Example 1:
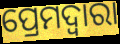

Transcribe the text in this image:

ପ୍ରେମଦ୍ୱାରା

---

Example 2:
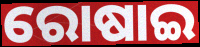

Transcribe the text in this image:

ରୋଷାଇ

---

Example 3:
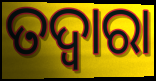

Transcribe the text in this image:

ତଦ୍ୱାରା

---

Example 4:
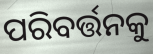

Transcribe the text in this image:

ପରିବର୍ତ୍ତନକୁ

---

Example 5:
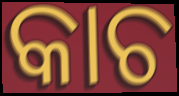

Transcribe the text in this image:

କାଚ